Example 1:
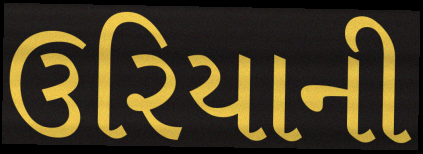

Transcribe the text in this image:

ઉરિયાની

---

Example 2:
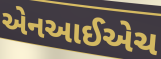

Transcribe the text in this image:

એનઆઈએચ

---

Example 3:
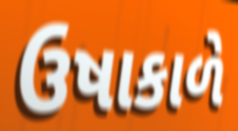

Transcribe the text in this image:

ઉષાકાળે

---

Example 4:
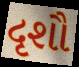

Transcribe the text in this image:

દૃશૌ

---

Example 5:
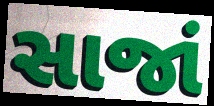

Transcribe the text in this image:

સાજાં